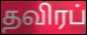
தவிரப்